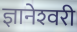
ज्ञानेश्‍वरी